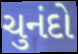
ચુનંદો